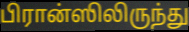
பிரான்ஸிலிருந்து